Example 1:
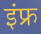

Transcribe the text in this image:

इंफ्र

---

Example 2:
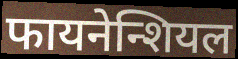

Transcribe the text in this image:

फायनेन्शियल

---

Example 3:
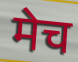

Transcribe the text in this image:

मेच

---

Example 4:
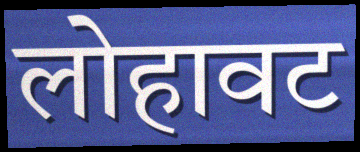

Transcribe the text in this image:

लोहावट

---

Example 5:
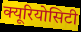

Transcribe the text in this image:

क्यूरियोसिटी